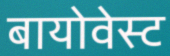
बायोवेस्ट